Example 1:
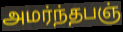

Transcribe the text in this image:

அமர்ந்தபஞ்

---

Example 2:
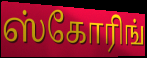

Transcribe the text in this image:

ஸ்கோரிங்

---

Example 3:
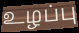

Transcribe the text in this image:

உழப்பு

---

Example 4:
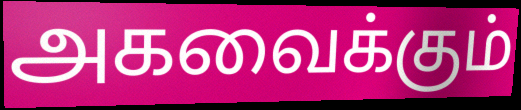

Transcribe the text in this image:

அகவைக்கும்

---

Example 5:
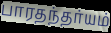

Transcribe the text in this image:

பாரதந்தர்யம்